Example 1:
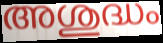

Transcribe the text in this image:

അശുദ്ധം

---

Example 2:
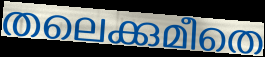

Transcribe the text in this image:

തലെക്കുമീതെ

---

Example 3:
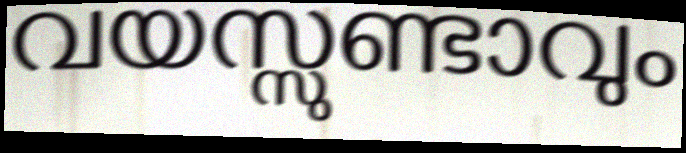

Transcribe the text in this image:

വയസ്സുണ്ടാവും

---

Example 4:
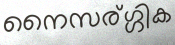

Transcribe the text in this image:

നൈസര്ഗ്ഗിക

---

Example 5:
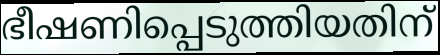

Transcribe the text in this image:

ഭീഷണിപ്പെടുത്തിയതിന്